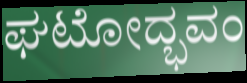
ಘಟೋದ್ಭವಂ